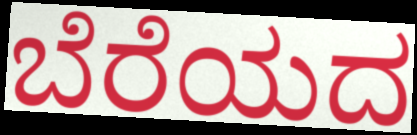
ಬೆರೆಯದ